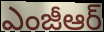
ఎంజీఆర్